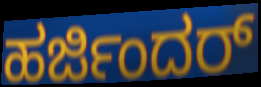
ಹರ್ಜಿಂದರ್